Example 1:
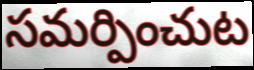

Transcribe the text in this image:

సమర్పించుట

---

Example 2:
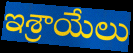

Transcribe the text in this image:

ఇశ్రాయేలు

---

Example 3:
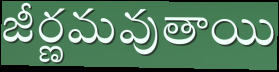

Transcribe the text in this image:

జీర్ణమవుతాయి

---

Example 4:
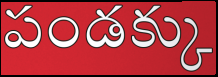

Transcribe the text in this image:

పండక్కు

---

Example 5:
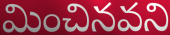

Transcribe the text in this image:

మించినవని